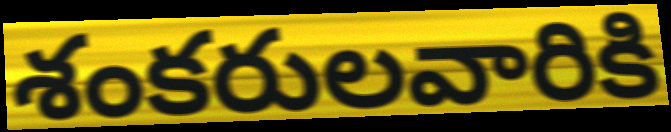
శంకరులవారికి